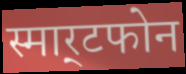
स्मार्टफोन